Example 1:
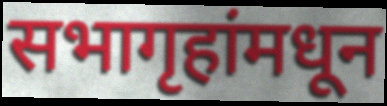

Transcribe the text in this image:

सभागृहांमधून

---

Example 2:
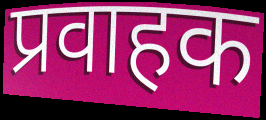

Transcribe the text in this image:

प्रवाहक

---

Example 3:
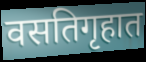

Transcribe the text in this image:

वसतिगृहात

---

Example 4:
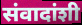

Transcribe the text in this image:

संवादांशी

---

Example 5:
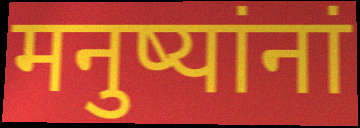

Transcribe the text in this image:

मनुष्यांनां